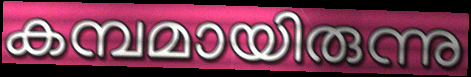
കമ്പമായിരുന്നു